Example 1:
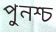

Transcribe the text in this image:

পুনশ্চ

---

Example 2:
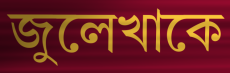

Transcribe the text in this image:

জুলেখাকে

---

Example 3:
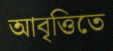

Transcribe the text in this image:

আবৃত্তিতে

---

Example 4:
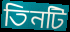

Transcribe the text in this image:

তিনটি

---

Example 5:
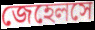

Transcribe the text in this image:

জেহেলসে